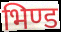
भिण्‍ड